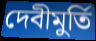
দেবীমুর্তি